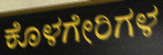
ಕೊಳಗೇರಿಗಳ